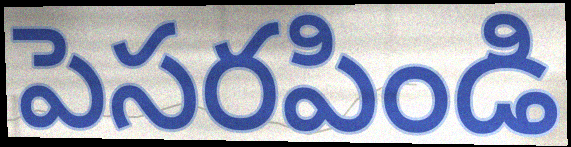
పెసరపిండి